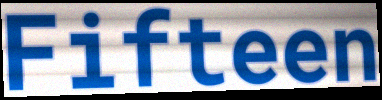
Fifteen